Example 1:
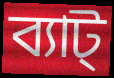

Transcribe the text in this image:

ব্যাট্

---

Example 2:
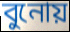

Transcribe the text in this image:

বুনোয়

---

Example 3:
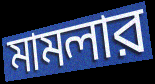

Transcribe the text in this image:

মামলার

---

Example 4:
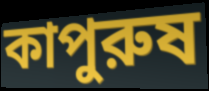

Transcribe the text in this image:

কাপুরুষ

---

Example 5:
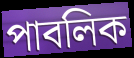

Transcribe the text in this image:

পাবলিক